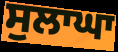
ਸੁਲਾਘਾ